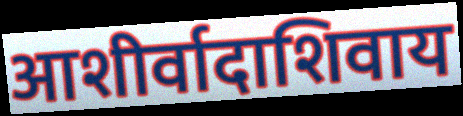
आशीर्वादाशिवाय